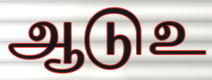
ஆடுஉ